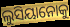
ଲୁସିୟାନୋକୁ